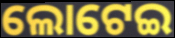
ଲୋଟେଇ